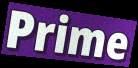
Prime